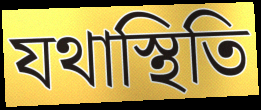
যথাস্থিতি